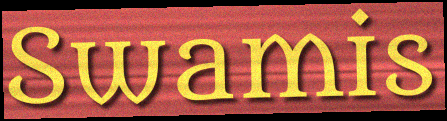
Swamis